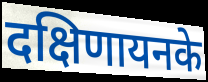
दक्षिणायनके